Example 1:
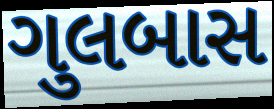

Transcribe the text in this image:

ગુલબાસ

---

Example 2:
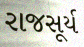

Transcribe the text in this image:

રાજસૂર્ય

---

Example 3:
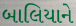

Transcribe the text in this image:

બાલિયાને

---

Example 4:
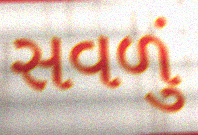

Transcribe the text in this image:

સવળું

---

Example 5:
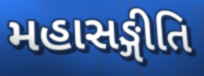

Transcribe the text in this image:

મહાસઙ્ગીતિ